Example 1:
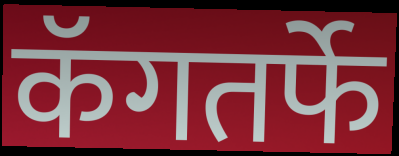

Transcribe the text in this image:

कॅगतर्फे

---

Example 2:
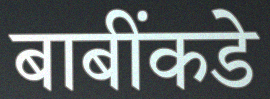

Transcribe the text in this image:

बाबींकडे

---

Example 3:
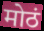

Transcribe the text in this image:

मोठं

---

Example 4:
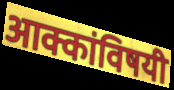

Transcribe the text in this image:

आक्कांविषयी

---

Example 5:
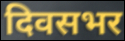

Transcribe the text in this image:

दिवसभर